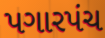
પગારપંચ